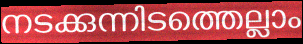
നടക്കുന്നിടത്തെല്ലാം